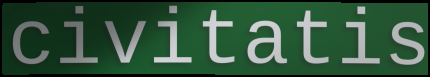
civitatis